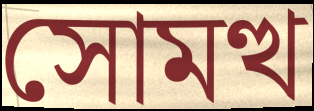
সোমত্থ